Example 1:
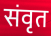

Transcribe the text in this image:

संवृत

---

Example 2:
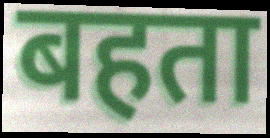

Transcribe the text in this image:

बहता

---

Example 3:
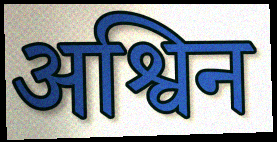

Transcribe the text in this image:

अश्विन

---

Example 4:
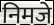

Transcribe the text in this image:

निमजे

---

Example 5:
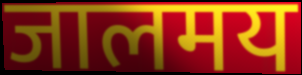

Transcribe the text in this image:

जालमय